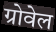
ग्रोवेल